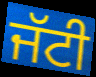
ਜੱਟੀ